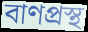
বাণপ্রস্থ